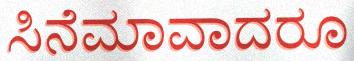
ಸಿನೆಮಾವಾದರೂ